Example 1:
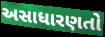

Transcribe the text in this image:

અસાધારણતો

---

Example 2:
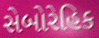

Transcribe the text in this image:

સેબોરેહિક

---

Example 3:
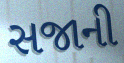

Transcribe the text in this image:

સજાની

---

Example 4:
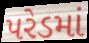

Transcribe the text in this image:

પરેડમાં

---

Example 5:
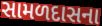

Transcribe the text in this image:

સામળદાસના